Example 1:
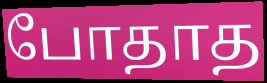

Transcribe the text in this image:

போதாத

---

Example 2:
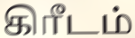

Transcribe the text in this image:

கிரீடம்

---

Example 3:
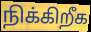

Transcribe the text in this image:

நிக்கிறீக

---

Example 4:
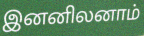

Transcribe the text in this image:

இனனிலனாம்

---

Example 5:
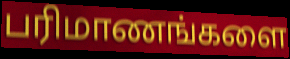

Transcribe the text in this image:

பரிமாணங்களை